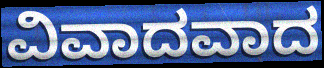
ವಿವಾದವಾದ